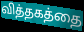
வித்தகத்தை